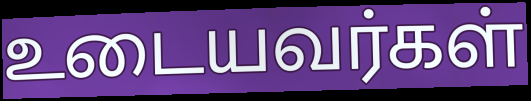
உடையவர்கள்